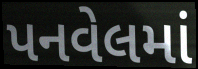
પનવેલમાં